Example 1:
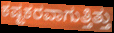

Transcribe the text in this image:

ಕಷ್ಟಕರವಾಗುತ್ತಿತ್ತು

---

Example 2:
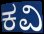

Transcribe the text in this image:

ಕವಿ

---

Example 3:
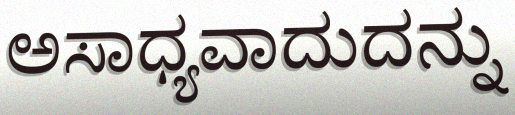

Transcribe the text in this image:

ಅಸಾಧ್ಯವಾದುದನ್ನು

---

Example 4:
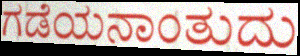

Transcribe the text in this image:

ಗಡೆಯನಾಂತುದು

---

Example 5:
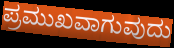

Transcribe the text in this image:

ಪ್ರಮುಖವಾಗುವುದು